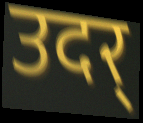
उदर्